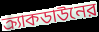
ক্র্যাকডাউনের